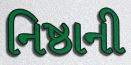
નિષ્ઠાની